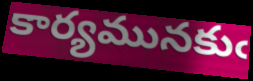
కార్యమునకుఁ